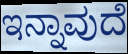
ಇನ್ನಾವುದೆ